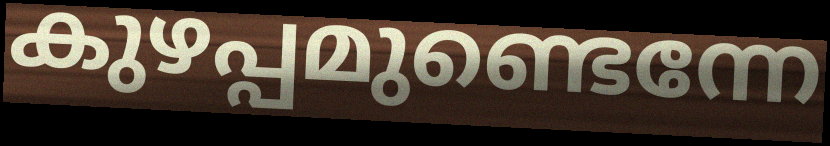
കുഴപ്പമുണ്ടെന്നേ